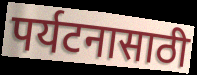
पर्यटनासाठी